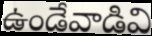
ఉండేవాడివి